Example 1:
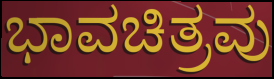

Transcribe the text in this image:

ಭಾವಚಿತ್ರವು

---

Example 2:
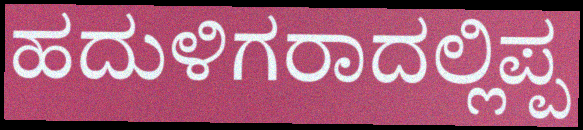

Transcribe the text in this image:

ಹದುಳಿಗರಾದಲ್ಲಿಪ್ಪ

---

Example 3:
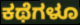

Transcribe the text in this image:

ಕಥೆಗಳೂ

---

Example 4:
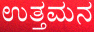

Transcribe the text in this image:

ಉತ್ತಮನ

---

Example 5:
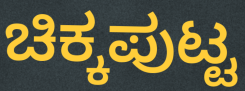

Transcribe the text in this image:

ಚಿಕ್ಕಪುಟ್ಟ